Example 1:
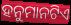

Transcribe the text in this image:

ହନୁମାନଟିଏ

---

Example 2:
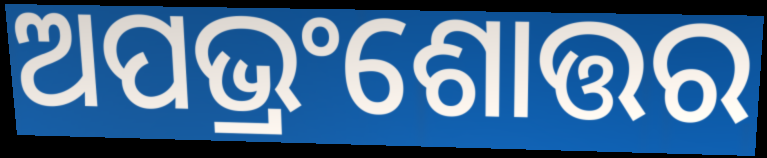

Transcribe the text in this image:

ଅପଭ୍ରଂଶୋତ୍ତର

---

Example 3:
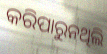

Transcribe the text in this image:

କରିପାରୁନଥିଲି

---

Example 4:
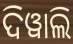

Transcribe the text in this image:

ଦିୱାଲି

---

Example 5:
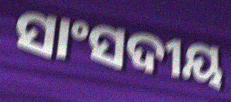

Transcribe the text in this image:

ସାଂସଦୀୟ